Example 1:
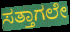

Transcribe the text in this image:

ಸತ್ತಾಗಲೇ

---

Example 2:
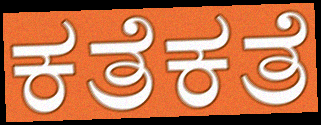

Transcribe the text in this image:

ಕತೆಕತೆ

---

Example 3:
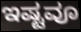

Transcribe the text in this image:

ಇಷ್ಟವೂ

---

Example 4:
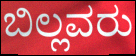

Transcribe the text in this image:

ಬಿಲ್ಲವರು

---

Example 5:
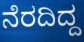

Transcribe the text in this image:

ನೆರದಿದ್ದ